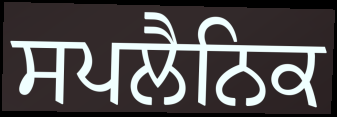
ਸਪਲੈਨਿਕ